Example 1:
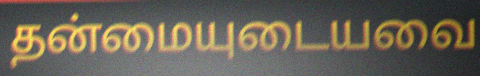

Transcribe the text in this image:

தன்மையுடையவை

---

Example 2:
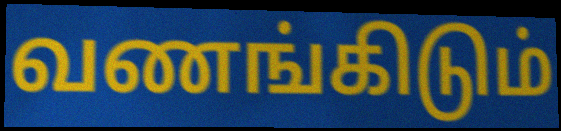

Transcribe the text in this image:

வணங்கிடும்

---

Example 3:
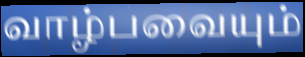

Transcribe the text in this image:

வாழ்பவையும்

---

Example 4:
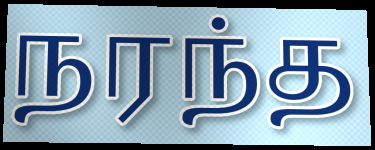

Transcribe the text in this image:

நரந்த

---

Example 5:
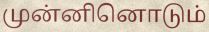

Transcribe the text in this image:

முன்னினொடும்